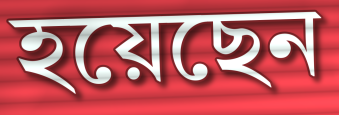
হয়েছেন